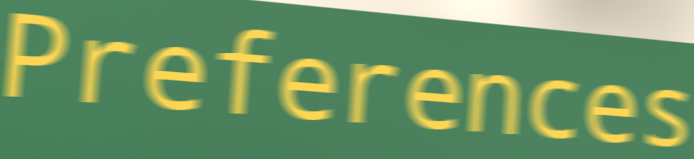
Preferences